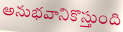
అనుభవానికొస్తుంది